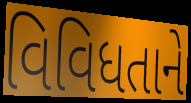
વિવિધતાને